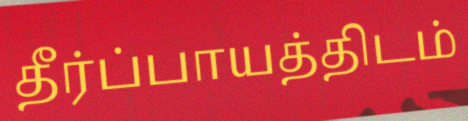
தீர்ப்பாயத்திடம்